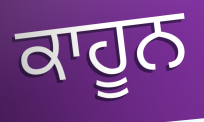
ਕਾਹੂਨ